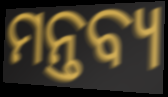
ମନ୍ତବ୍ଯ